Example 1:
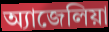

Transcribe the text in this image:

অ্যাজেলিয়া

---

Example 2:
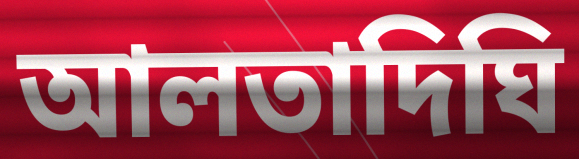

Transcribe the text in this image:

আলতাদিঘি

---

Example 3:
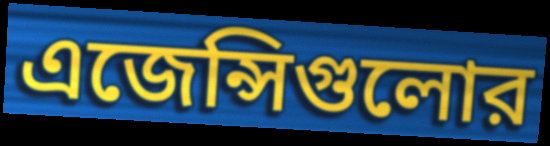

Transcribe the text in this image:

এজেন্সিগুলোর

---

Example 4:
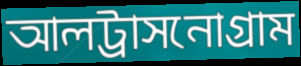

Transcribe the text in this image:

আলট্রাসনোগ্রাম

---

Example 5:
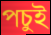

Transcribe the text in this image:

পচুই